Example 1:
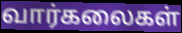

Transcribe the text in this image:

வார்கலைகள்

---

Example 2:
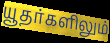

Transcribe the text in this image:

யூதர்களிலும்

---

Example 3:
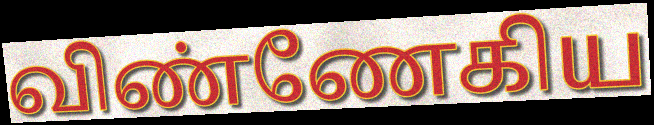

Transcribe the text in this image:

விண்ணேகிய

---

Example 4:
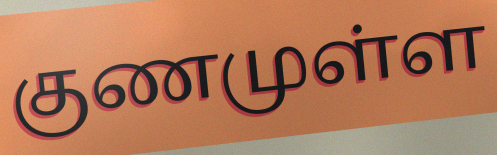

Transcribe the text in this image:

குணமுள்ள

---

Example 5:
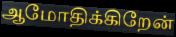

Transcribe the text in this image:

ஆமோதிக்கிறேன்